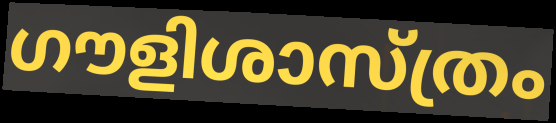
ഗൗളിശാസ്ത്രം